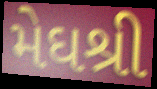
મેઘશ્રી